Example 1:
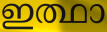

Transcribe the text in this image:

ഇത്ഥാ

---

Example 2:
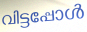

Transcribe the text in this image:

വിട്ടപ്പോൾ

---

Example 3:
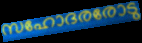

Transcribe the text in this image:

സഹോദരരോടു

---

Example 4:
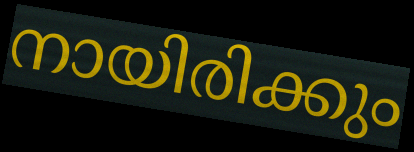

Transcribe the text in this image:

നായിരിക്കും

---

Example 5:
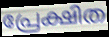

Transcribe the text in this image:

പ്രേക്ഷിത